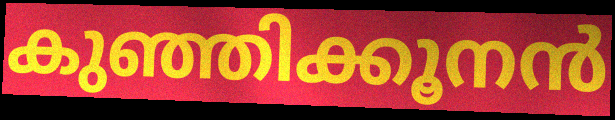
കുഞ്ഞിക്കൂനൻ